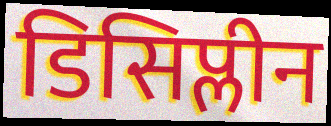
डिसिप्लीन